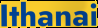
Ithanai